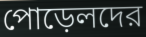
পোড়েলদের